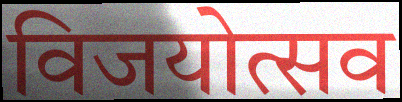
विजयोत्सव